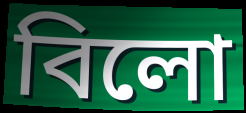
বিলো